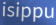
isippu